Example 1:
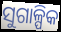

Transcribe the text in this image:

ସୁଗାଳ୍ପିକ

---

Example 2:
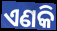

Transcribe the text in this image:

ଏଣକି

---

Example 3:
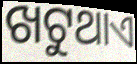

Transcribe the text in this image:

ଖଟୁଥାଏ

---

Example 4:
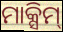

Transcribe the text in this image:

ମାକ୍ସିମ୍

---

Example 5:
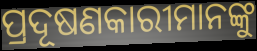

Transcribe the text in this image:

ପ୍ରଦୂଷଣକାରୀମାନଙ୍କୁ